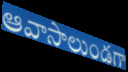
ఆవాసాలుండగా